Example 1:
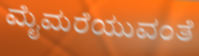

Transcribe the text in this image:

ಮೈಮರೆಯುವಂತೆ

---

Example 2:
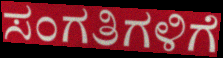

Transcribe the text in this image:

ಸಂಗತಿಗಳಿಗೆ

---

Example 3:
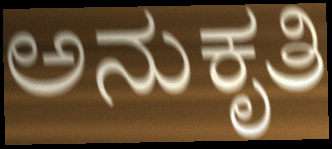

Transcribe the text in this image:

ಅನುಕೃತಿ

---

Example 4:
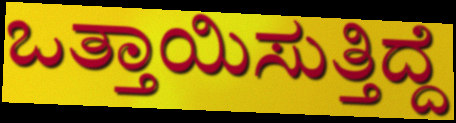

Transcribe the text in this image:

ಒತ್ತಾಯಿಸುತ್ತಿದ್ದೆ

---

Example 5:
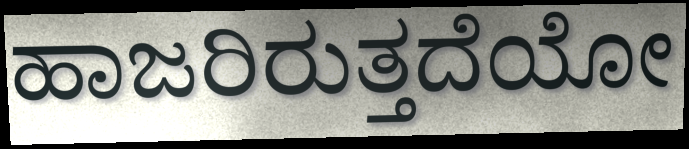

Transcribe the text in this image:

ಹಾಜರಿರುತ್ತದೆಯೋ